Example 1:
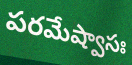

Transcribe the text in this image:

పరమేష్వాసః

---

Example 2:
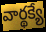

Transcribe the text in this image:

వార్థక్యే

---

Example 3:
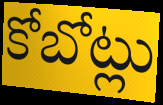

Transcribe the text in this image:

కోబోట్లు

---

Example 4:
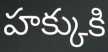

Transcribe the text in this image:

హక్కుకి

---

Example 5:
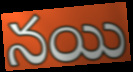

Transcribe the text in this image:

నయి